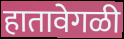
हातावेगळी